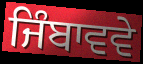
ਜਿੰਬਾਵਵੇ